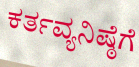
ಕರ್ತವ್ಯನಿಷ್ಠೆಗೆ